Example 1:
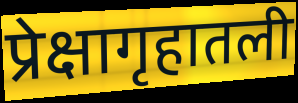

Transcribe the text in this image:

प्रेक्षागृहातली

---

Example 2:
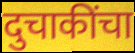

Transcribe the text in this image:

दुचाकींचा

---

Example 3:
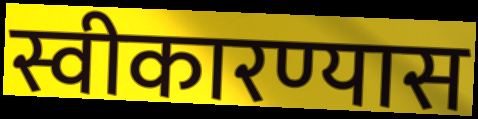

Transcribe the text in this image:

स्वीकारण्यास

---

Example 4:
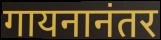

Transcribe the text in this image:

गायनानंतर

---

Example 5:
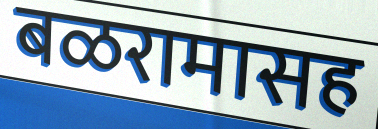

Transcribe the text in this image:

बळरामासह